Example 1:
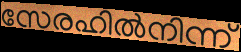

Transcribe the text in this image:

സേരഹിൽനിന്ന്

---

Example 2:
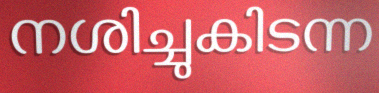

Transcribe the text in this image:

നശിച്ചുകിടന്ന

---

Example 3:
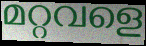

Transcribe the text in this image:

മറ്റവളെ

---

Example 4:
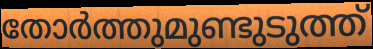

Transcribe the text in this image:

തോർത്തുമുണ്ടുടുത്ത്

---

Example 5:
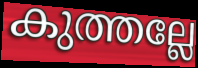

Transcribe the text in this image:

കുത്തല്ലേ